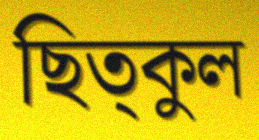
ছিত্কুল